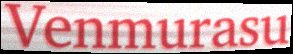
Venmurasu